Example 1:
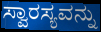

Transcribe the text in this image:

ಸ್ವಾರಸ್ಯವನ್ನು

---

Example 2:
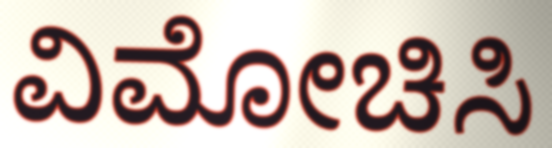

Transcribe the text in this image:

ವಿಮೋಚಿಸಿ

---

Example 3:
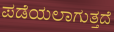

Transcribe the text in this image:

ಪಡೆಯಲಾಗುತ್ತದೆ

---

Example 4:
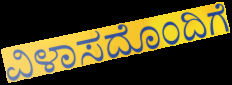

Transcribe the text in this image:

ವಿಳಾಸದೊಂದಿಗೆ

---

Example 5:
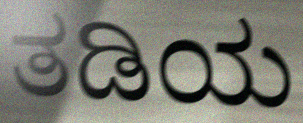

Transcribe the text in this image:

ತಡಿಯ